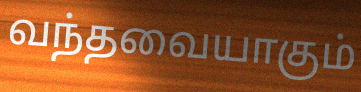
வந்தவையாகும்